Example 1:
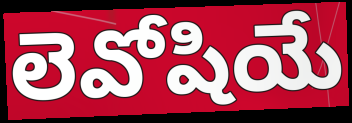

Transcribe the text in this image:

లెవోషియే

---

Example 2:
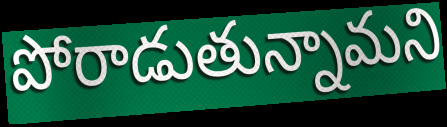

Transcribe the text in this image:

పోరాడుతున్నామని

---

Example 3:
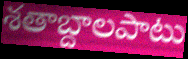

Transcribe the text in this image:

శతాబ్దాలపాటు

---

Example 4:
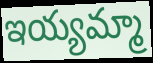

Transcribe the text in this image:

ఇయ్యమ్మా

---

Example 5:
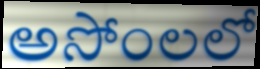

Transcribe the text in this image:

అసోంలలో